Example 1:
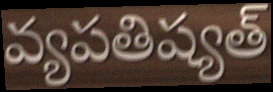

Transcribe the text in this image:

వ్యపతిష్యత్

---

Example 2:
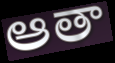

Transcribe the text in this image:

ఆతా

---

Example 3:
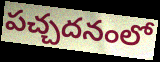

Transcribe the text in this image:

పచ్చదనంలో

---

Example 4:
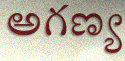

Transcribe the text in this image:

అగణ్య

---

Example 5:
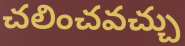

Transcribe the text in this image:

చలించవచ్చు